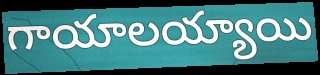
గాయాలయ్యాయి